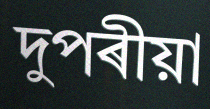
দুপৰীয়া